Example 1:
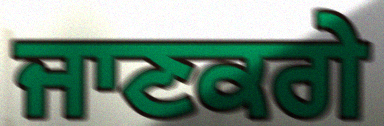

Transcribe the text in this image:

ਜਾਣਕਗੇ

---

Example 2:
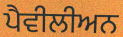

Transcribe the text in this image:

ਪੈਵੀਲੀਅਨ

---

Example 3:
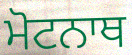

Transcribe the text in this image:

ਮੋਟਨਾਥ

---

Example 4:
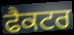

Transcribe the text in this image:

ਫੈਕਟਰ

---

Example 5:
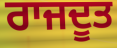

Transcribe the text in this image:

ਰਾਜਦੂਤ